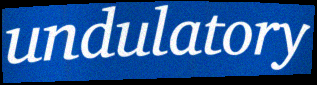
undulatory